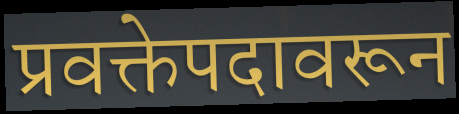
प्रवक्तेपदावरून